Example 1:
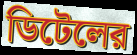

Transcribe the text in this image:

ডিটেলের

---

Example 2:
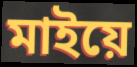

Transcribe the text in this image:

মাইয়ে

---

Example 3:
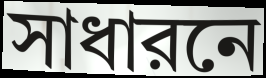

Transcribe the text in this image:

সাধারনে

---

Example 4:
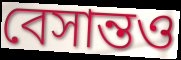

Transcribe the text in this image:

বেসান্তও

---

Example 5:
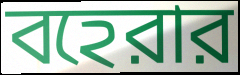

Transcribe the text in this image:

বহেরার